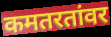
कमतरतांवर